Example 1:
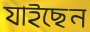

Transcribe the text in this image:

যাইছেন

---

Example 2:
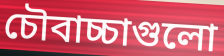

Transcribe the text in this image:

চৌবাচ্চাগুলো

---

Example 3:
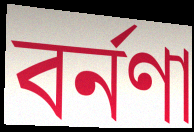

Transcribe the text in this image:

বর্নণা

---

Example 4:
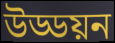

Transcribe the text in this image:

উড্ডয়ন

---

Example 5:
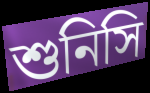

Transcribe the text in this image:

শুনিসি